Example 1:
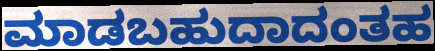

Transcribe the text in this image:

ಮಾಡಬಹುದಾದಂತಹ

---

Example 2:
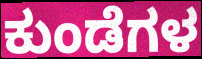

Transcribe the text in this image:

ಕುಂಡೆಗಳ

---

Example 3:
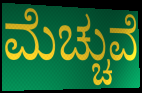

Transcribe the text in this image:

ಮೆಚ್ಚುವೆ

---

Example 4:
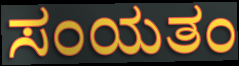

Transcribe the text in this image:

ಸಂಯತಂ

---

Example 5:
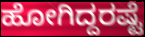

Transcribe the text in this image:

ಹೋಗಿದ್ದರಷ್ಟೆ